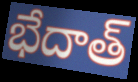
భేదాత్